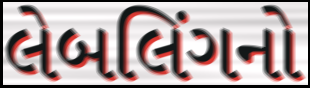
લેબલિંગનો